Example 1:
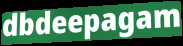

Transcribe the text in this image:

dbdeepagam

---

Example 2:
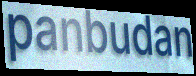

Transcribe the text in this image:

panbudan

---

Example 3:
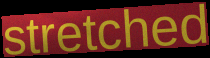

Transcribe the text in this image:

stretched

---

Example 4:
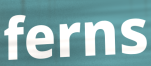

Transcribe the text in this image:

ferns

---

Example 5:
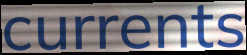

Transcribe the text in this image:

currents